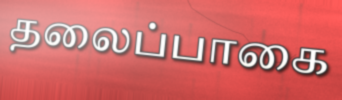
தலைப்பாகை